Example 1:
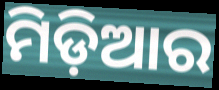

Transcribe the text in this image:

ମିଡ଼ିଆର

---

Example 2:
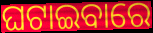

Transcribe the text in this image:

ଘଟାଇବାରେ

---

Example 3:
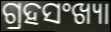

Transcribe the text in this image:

ଗ୍ରହସଂଖ୍ୟା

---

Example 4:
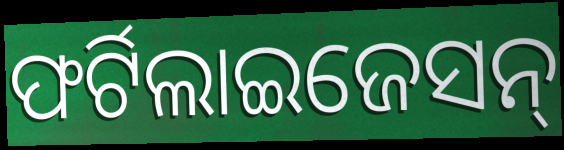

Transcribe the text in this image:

ଫର୍ଟିଲାଇଜେସନ୍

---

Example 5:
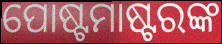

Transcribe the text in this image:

ପୋଷ୍ଟମାଷ୍ଟରଙ୍କ